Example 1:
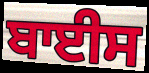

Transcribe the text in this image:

ਬਾਈਸ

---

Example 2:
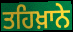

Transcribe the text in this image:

ਤਹਿਖ਼ਾਨੇ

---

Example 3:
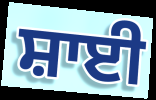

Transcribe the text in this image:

ਸ਼ਾਈ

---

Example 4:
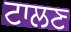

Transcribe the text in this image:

ਟਾਲਣ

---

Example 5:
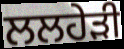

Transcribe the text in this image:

ਲਲਹੇੜੀ